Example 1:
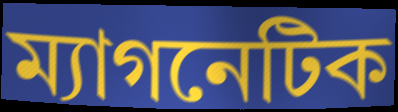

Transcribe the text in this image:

ম্যাগনেটিক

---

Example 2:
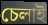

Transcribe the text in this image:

চেলাই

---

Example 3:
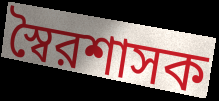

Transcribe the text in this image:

স্বৈরশাসক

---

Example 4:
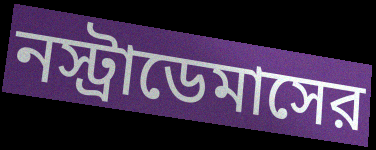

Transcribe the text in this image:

নস্ট্রাডেমাসের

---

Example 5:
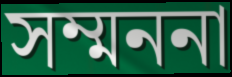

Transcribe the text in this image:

সম্মননা